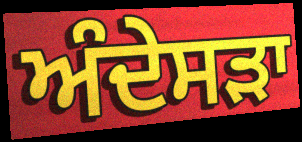
ਅੰਦੇਸੜਾ